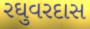
રઘુવરદાસ